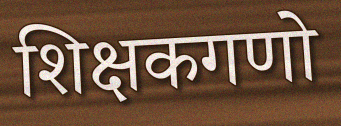
शिक्षकगणो